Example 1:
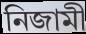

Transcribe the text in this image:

নিজামী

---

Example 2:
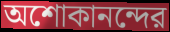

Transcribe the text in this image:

অশোকানন্দের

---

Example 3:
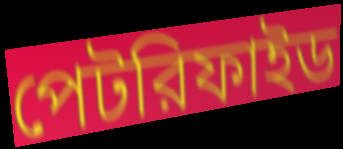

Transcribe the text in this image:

পেটরিফাইড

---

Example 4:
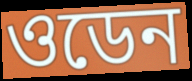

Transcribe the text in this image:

ওডেন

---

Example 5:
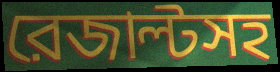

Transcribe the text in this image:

রেজাল্টসহ